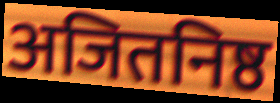
अजितनिष्ठ